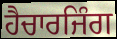
ਹੈਚਾਰਜਿੰਗ